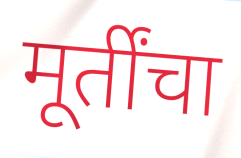
मूर्तींचा